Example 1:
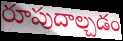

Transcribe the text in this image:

రూపుదాల్చడం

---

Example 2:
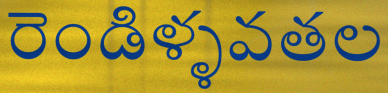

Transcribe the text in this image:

రెండిళ్ళవతల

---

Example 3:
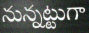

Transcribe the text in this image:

నున్నట్టుగా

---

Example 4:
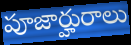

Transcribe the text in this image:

పూజార్హురాలు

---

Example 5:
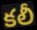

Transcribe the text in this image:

కలీ